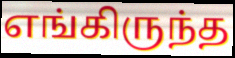
எங்கிருந்த